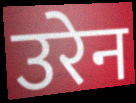
उरेन